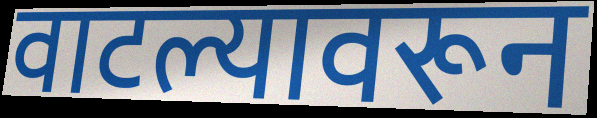
वाटल्यावरून